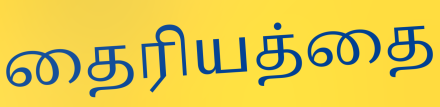
தைரியத்தை